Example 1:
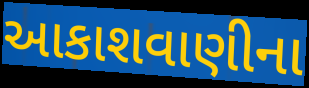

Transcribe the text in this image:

આકાશવાણીના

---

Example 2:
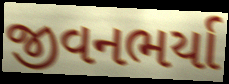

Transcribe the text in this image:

જીવનભર્યા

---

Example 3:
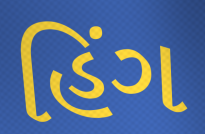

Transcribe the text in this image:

હિંગ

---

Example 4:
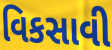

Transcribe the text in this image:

વિકસાવી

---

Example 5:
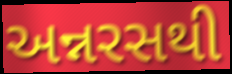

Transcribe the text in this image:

અન્નરસથી